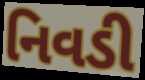
નિવડી